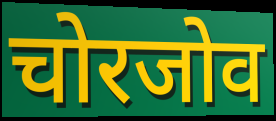
चोरजोव